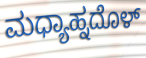
ಮಧ್ಯಾಹ್ನದೊಳ್